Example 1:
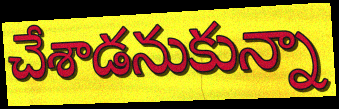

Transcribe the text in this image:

చేశాడనుకున్నా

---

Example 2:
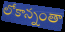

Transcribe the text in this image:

లోకాన్నంతా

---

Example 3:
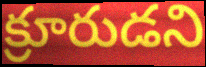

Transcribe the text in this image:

క్రూరుడని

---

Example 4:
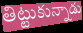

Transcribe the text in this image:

తిట్టుకున్నాడు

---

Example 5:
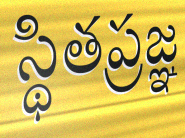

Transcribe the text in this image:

స్థితప్రజ్ఞ